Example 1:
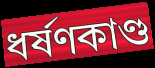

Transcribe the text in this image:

ধর্ষণকাণ্ড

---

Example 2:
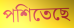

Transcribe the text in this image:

পশিতেছে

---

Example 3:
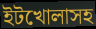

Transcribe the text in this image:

ইটখোলাসহ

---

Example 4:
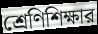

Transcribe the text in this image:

শ্রেণিশিক্ষার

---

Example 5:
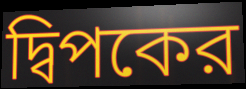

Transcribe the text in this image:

দ্বিপকের